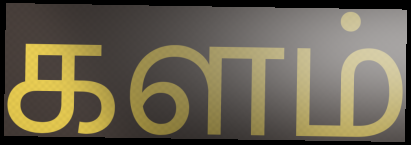
களம்